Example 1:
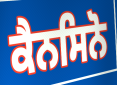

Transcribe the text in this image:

ਕੈਨਸਿਨੋ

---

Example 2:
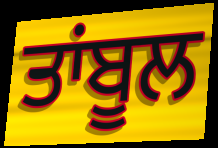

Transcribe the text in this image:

ਤਾਂਬੂਲ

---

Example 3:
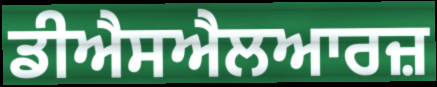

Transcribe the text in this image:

ਡੀਐਸਐਲਆਰਜ਼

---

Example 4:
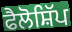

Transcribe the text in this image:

ਫੈਲੋਸ਼ਿੱਪ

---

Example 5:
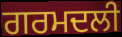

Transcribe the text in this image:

ਗਰਮਦਲੀ